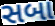
સબા